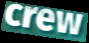
crew